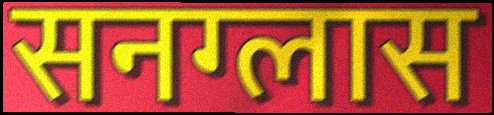
सनग्लास